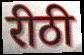
रीठी